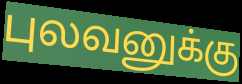
புலவனுக்கு